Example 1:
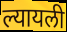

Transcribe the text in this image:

ल्यायली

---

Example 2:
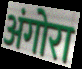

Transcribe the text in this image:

अंगोरा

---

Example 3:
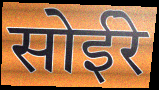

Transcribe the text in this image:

सोईरे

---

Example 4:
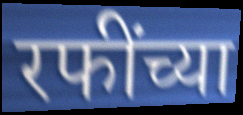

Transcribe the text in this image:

रफींच्या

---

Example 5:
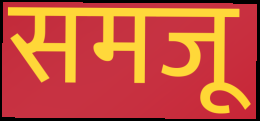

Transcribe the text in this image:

समजू